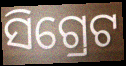
ସିଗ୍ରେଟ